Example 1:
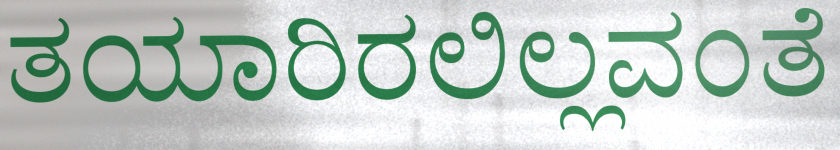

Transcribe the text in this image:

ತಯಾರಿರಲಿಲ್ಲವಂತೆ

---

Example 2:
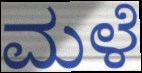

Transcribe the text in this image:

ಮಳೆ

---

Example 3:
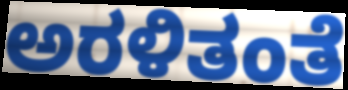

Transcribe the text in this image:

ಅರಳಿತಂತೆ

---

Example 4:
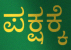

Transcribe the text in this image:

ಪಕ್ಷಕ್ಕೆ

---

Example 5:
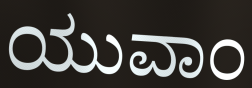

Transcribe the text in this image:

ಯುವಾಂ